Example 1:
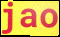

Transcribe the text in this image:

jao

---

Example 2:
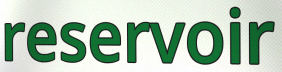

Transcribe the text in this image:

reservoir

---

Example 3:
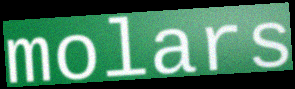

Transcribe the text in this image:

molars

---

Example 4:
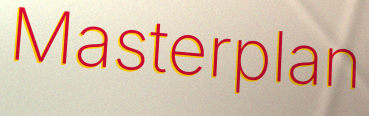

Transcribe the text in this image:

Masterplan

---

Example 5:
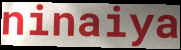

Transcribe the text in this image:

ninaiya